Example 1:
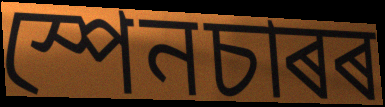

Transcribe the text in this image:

স্পেনচাৰৰ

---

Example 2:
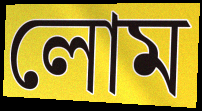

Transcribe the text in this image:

লোম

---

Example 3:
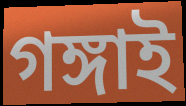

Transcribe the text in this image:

গঙ্গাই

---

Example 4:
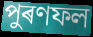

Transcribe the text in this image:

পুৰণফল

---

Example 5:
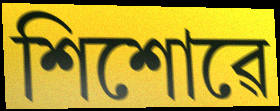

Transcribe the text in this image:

শিশোৱে